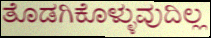
ತೊಡಗಿಕೊಳ್ಳುವುದಿಲ್ಲ